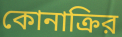
কোনাক্রির